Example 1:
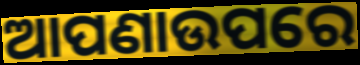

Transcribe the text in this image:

ଆପଣାଉପରେ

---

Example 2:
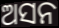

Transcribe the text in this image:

ଅସନ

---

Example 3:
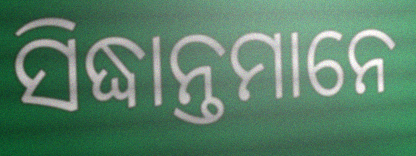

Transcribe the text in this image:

ସିଦ୍ଧାନ୍ତମାନେ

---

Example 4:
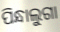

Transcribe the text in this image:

ପିନ୍ଧାଲୁଗା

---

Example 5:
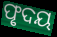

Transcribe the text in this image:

ଫୃଦୟ